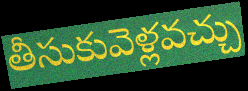
తీసుకువెళ్లవచ్చు